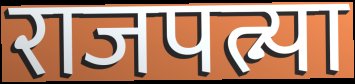
राजपत्न्या